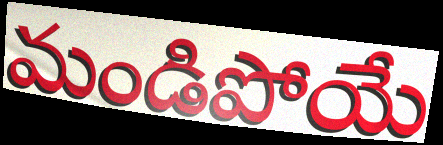
మండిపోయే